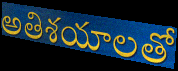
అతిశయాలతో